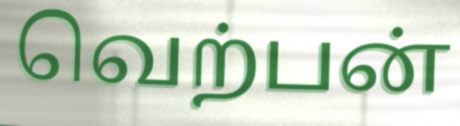
வெற்பன்